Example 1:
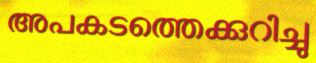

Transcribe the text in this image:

അപകടത്തെക്കുറിച്ചു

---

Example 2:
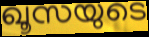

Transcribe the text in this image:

ഖൂസയുടെ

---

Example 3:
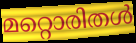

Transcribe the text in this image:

മറ്റൊരിതൾ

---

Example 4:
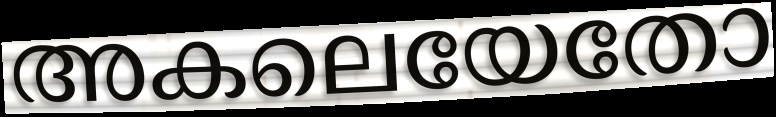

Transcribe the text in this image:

അകലെയേതോ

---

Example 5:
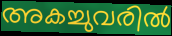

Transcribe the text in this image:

അകച്ചുവരിൽ